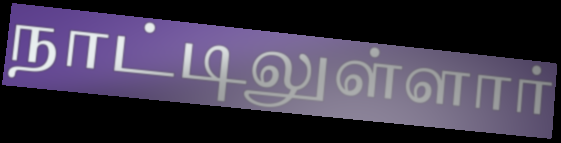
நாட்டிலுள்ளார்